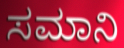
ಸಮಾನಿ